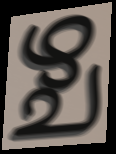
ഴ്ച